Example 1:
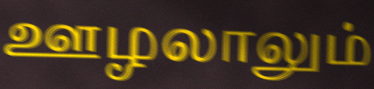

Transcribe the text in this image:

ஊழலாலும்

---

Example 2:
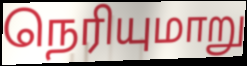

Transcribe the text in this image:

நெரியுமாறு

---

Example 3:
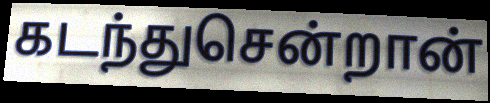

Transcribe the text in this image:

கடந்துசென்றான்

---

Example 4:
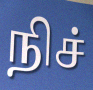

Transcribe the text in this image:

நிச்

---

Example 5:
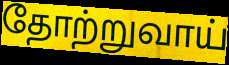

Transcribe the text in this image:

தோற்றுவாய்